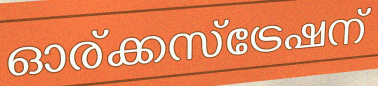
ഓര്ക്കസ്ട്രേഷന്